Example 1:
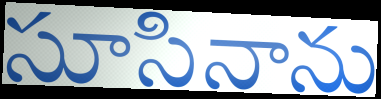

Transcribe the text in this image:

సూసినాను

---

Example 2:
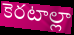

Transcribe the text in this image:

కెరటాల్లా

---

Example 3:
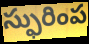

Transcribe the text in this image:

స్ఫురింప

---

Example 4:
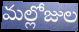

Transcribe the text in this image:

మల్లోజుల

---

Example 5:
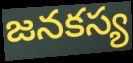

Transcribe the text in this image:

జనకస్య